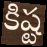
కిష్ట